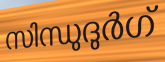
സിന്ധുദുർഗ്